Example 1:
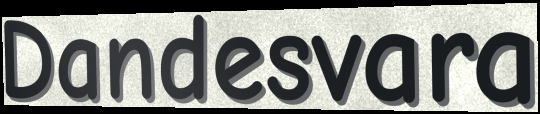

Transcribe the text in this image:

Dandesvara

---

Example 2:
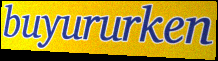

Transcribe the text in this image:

buyururken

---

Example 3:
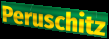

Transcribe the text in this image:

Peruschitz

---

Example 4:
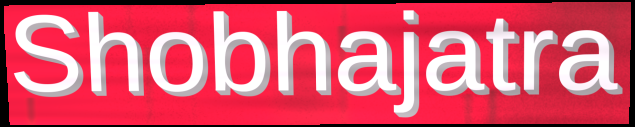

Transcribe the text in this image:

Shobhajatra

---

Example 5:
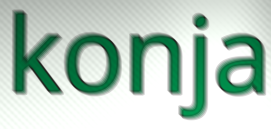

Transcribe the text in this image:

konja